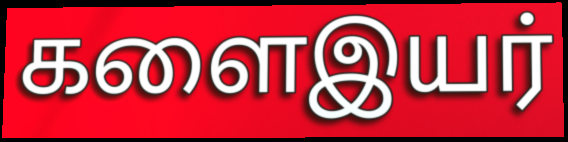
களைஇயர்